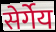
सेर्गेय